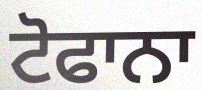
ਟੋਫਾਨਾ